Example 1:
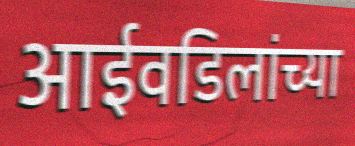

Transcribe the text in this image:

आईवडिलांच्या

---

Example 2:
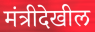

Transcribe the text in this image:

मंत्रीदेखील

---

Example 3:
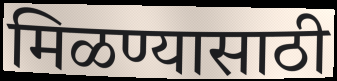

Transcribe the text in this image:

मिळण्‍यासाठी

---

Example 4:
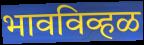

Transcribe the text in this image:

भावविव्हळ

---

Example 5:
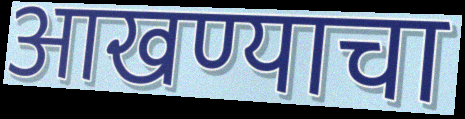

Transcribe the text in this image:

आखण्याचा